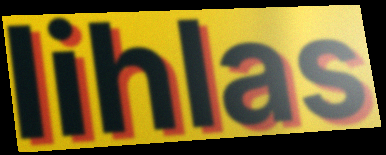
lihlas